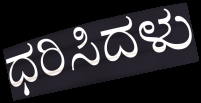
ಧರಿಸಿದಳು